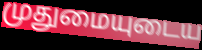
முதுமையுடைய